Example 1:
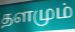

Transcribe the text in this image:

தளமும்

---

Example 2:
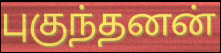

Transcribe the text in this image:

புகுந்தனன்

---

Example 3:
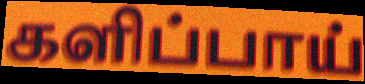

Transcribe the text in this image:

களிப்பாய்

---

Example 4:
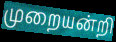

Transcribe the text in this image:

முறையன்றி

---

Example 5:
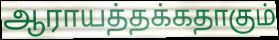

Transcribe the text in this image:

ஆராயத்தக்கதாகும்